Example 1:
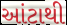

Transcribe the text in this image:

આંટાથી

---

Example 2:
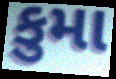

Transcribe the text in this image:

કુમા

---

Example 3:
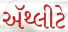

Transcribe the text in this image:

ઍથ્લીટે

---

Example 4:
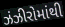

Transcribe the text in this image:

ઝંઝીરોમાંથી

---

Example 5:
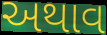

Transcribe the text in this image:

અથાવ